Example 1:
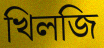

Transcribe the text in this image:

খিলজি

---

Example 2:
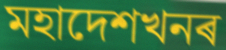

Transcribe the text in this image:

মহাদেশখনৰ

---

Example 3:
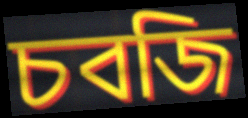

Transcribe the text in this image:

চবজি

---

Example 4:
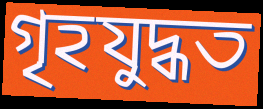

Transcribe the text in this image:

গৃহযুদ্ধত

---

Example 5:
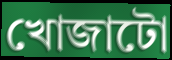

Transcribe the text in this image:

খোজাটো